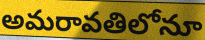
అమరావతిలోనూ